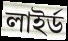
লাইর্ড